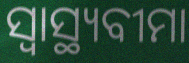
ସ୍ଵାସ୍ଥ୍ୟବୀମା